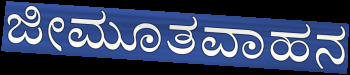
ಜೀಮೂತವಾಹನ